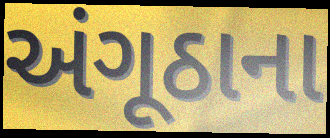
અંગૂઠાના